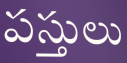
పస్తులు